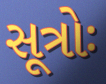
સૂત્રોઃ